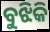
ବୁଝିକି